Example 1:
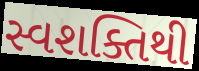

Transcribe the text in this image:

સ્વશક્તિથી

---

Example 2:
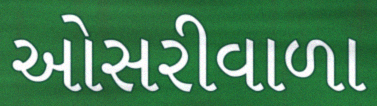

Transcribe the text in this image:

ઓસરીવાળા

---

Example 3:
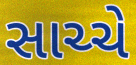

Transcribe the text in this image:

સાચ્ચે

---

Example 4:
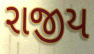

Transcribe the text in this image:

રાજીય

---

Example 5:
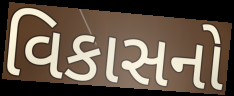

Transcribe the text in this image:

વિકાસનો